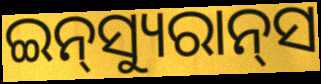
ଇନ୍‌ସ୍ୟୁରାନ୍‌ସ